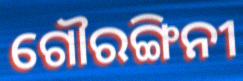
ଗୌରଙ୍ଗିନୀ